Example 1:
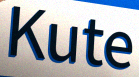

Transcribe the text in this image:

Kute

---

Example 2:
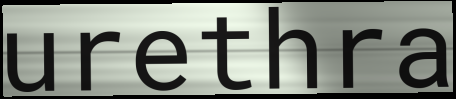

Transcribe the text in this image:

urethra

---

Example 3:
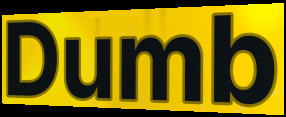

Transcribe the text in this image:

Dumb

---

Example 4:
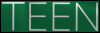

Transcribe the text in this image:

TEEN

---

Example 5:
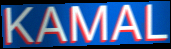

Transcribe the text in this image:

KAMAL